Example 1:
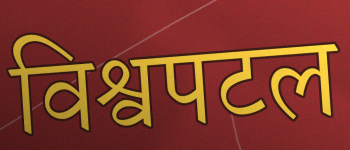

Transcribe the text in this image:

विश्वपटल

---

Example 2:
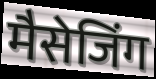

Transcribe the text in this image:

मैसेजिंग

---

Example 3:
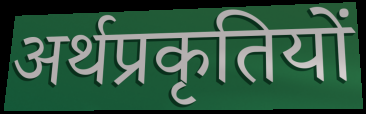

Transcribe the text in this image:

अर्थप्रकृतियों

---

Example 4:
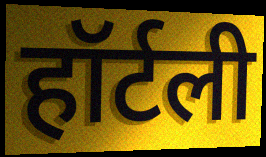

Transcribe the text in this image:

हॉर्टली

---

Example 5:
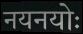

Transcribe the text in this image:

नयनयोः